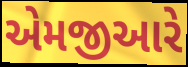
એમજીઆરે